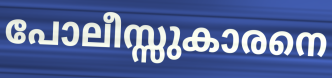
പോലീസ്സുകാരനെ